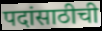
पदांसाठीची